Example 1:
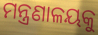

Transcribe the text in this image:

ମନ୍ତ୍ରଣାଳୟକୁ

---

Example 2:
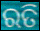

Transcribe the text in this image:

ରତି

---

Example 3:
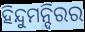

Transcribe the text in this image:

ହିନ୍ଦୁମନ୍ଦିରର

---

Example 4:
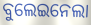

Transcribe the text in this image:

ବୁଲେଇନେଲା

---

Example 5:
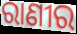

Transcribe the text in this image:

ରାଣୀର